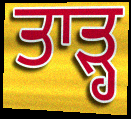
ਤਾੜ੍ਹ